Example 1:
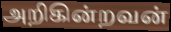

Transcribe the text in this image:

அறிகின்றவன்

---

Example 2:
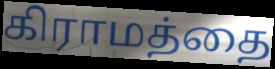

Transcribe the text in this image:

கிராமத்தை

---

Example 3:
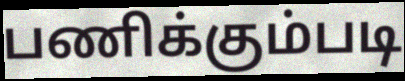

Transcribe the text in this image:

பணிக்கும்படி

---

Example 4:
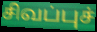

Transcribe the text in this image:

சிவப்புச்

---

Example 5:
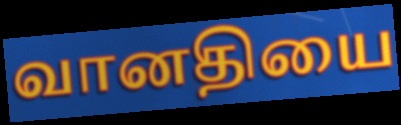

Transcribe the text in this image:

வானதியை